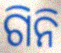
ଗିନି